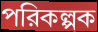
পরিকল্পক